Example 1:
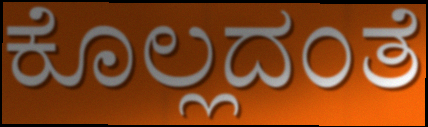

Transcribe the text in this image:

ಕೊಲ್ಲದಂತೆ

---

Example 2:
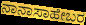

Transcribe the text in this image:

ನಾನಾಸಾಹೇಬರ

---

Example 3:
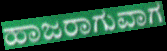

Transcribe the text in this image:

ಹಾಜರಾಗುವಾಗ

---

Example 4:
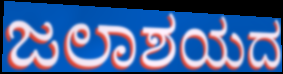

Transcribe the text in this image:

ಜಲಾಶಯದ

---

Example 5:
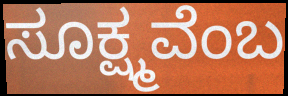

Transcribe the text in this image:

ಸೂಕ್ಷ್ಮವೆಂಬ